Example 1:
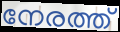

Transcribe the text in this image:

നേരത്ത്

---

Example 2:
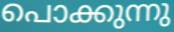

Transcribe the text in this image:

പൊക്കുന്നു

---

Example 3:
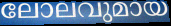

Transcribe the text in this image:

ലോലവുമായ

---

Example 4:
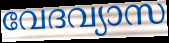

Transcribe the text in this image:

വേദവ്യാസ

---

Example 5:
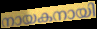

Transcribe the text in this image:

നായകനായി